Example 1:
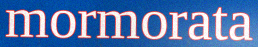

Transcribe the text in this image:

mormorata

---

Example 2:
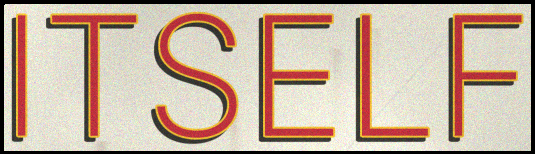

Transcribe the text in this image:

ITSELF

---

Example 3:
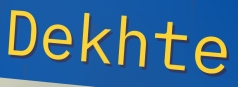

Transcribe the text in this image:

Dekhte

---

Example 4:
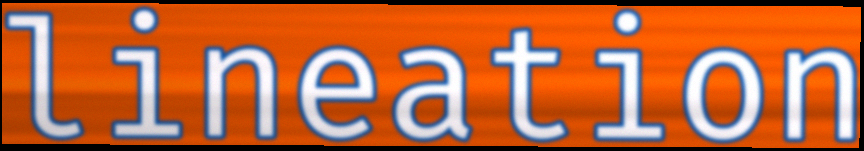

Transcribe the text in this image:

lineation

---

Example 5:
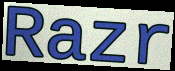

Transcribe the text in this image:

Razr